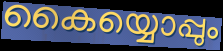
കൈയ്യൊപ്പും